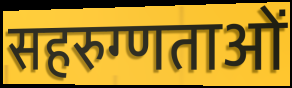
सहरुग्णताओं